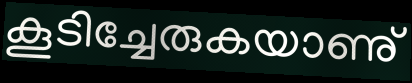
കൂടിച്ചേരുകയാണു്